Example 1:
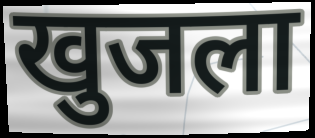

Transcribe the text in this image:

खुजला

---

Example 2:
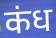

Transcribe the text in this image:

कंध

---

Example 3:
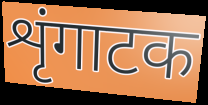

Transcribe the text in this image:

शृंगाटक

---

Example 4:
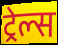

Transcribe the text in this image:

ट्रेल्स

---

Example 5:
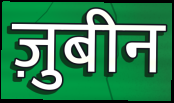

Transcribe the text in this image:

ज़ुबीन